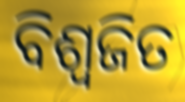
ବିଶ୍ଵଜିତ